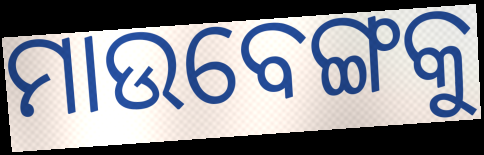
ମାଉବେଙ୍ଗକୁ